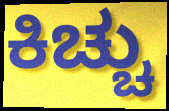
ಕಿಚ್ಚು